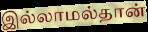
இல்லாமல்தான்